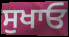
ਸੁਖਾਓ